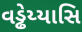
વડ્ઢેય્યાસિ